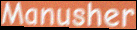
Manusher